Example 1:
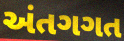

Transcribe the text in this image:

અંતગગત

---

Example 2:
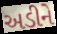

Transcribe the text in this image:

અડીને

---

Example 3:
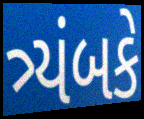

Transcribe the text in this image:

ત્ર્યંબકે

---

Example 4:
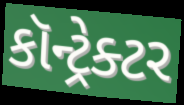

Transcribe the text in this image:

કૉન્ટ્રેક્ટર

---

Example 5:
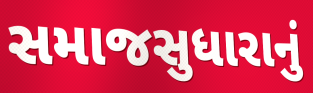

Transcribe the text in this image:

સમાજસુધારાનું